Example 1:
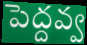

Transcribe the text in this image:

పెద్దవ్వ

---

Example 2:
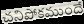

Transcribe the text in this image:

చనిపోకముందే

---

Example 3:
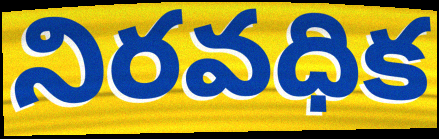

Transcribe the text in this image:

నిరవధిక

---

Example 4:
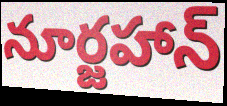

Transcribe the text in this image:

నూర్జహాన్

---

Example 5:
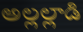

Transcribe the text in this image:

అల్లల్లాడి